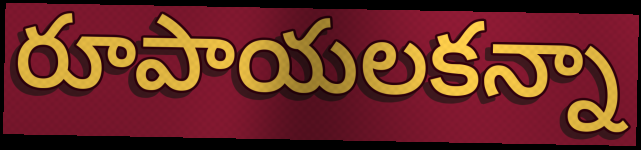
రూపాయలకన్నా